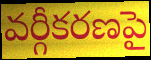
వర్గీకరణపై